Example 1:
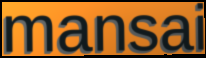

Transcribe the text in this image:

mansai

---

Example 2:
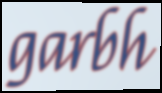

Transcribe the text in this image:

garbh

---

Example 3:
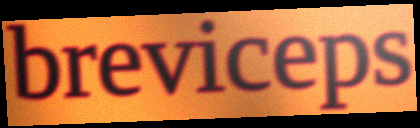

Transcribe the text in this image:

breviceps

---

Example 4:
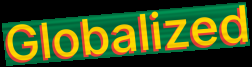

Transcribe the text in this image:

Globalized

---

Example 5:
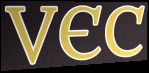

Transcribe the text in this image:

VEC